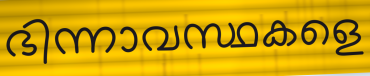
ഭിന്നാവസ്ഥകളെ